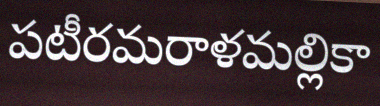
పటీరమరాళమల్లికా